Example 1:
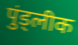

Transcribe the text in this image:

पुंड्लीक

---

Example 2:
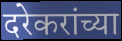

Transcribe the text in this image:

दरेकरांच्या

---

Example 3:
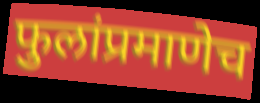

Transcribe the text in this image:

फुलांप्रमाणेच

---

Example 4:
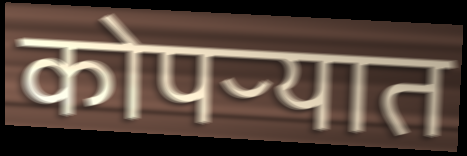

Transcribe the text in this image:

कोपऱ्यात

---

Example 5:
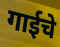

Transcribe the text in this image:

गाईचे